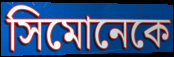
সিমোনেকে